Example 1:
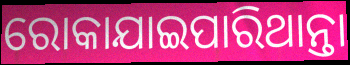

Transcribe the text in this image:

ରୋକାଯାଇପାରିଥାନ୍ତା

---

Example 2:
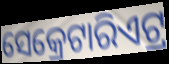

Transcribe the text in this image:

ସେକ୍ରେଟାରିଏଟ୍ର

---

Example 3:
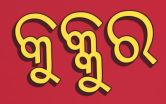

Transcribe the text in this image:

କୁକ୍କୁର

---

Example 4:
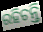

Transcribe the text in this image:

ରହିଚନ୍ତି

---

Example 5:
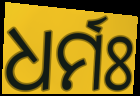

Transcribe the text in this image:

ଧର୍ମଃ